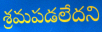
శ్రమపడలేదని